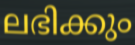
ലഭിക്കും